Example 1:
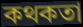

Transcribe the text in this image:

কথকতা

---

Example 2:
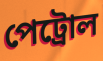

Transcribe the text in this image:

পেট্ৰোল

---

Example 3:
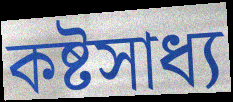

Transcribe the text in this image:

কষ্টসাধ্য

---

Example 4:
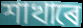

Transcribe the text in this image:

শাখাৰে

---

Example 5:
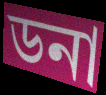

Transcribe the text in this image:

ডনা